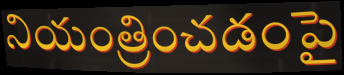
నియంత్రించడంపై